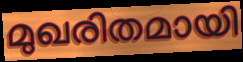
മുഖരിതമായി